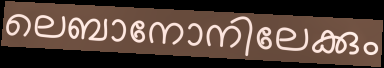
ലെബാനോനിലേക്കും